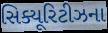
સિક્યૂરિટીઝના